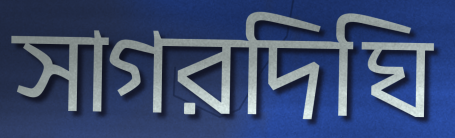
সাগরদিঘি